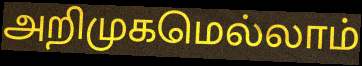
அறிமுகமெல்லாம்